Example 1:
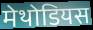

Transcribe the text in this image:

मेथोडियस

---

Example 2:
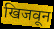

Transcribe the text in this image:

खिजवून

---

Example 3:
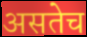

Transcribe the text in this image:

असतेच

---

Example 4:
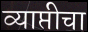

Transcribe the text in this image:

व्याप्तीचा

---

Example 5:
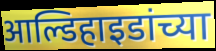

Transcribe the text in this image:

आल्डिहाइडांच्या